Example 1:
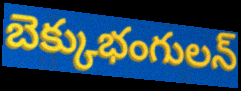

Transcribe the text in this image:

బెక్కుభంగులన్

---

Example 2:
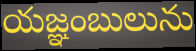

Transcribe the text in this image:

యజ్ఞంబులును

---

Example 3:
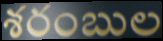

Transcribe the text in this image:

శరంబుల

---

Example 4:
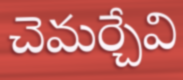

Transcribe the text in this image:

చెమర్చేవి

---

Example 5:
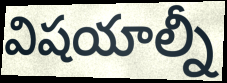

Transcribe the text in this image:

విషయాల్నీ